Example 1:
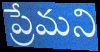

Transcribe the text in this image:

ప్రేమని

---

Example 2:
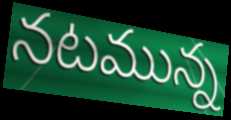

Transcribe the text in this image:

నటమున్న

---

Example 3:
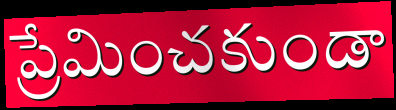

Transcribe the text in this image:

ప్రేమించకుండా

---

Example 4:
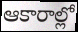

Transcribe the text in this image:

ఆకారాల్లో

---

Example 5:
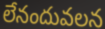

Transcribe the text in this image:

లేనందువలన